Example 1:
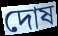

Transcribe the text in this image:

দোষ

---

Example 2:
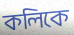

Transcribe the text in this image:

কলিকে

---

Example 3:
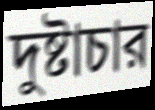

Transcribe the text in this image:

দুষ্টাচার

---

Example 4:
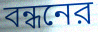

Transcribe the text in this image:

বন্ধনের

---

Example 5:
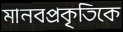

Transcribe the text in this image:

মানবপ্রকৃতিকে